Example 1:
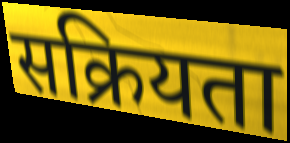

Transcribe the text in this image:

सक्रियता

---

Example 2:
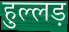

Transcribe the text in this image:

हुल्लड़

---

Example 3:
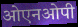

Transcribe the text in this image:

ओएनओपी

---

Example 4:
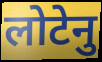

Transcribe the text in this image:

लोटेनु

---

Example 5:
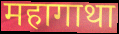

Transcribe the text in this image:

महागाथा